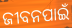
ଜୀବନପାଇଁ